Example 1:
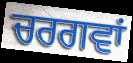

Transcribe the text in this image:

ਚਰਗਵਾਂ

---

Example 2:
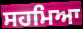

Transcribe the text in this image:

ਸਹਮਿਆ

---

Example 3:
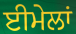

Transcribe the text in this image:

ਈਮੇਲਾਂ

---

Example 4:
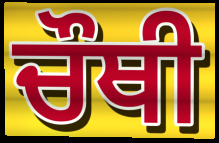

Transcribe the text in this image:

ਚੌਥੀ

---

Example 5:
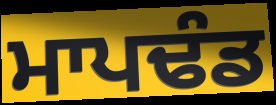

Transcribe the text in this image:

ਮਾਪਢੰਡ